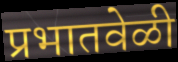
प्रभातवेळी